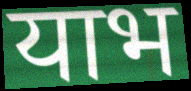
याभ